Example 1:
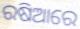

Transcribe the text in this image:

ରଷିଆରେ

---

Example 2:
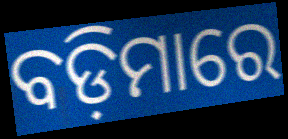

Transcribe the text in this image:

ବଡ଼ିମାରେ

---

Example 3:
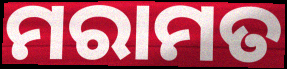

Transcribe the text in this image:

ମରାମତ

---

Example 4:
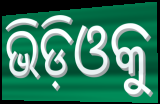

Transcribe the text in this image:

ଭିଡ଼ିଓକୁ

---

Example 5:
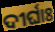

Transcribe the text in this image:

ଦୀର୍ଘାଃ